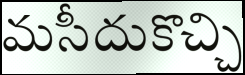
మసీదుకొచ్చి